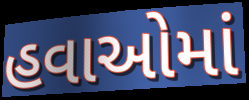
હવાઓમાં